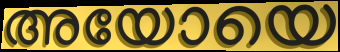
അയോയെ